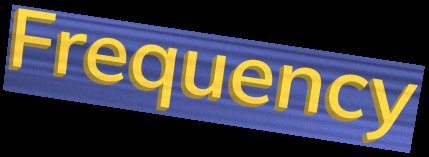
Frequency